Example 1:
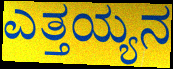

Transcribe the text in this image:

ಎತ್ತಯ್ಯನ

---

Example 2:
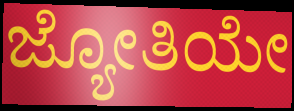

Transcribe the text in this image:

ಜ್ಯೋತಿಯೇ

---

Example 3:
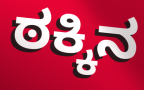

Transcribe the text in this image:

ಠಕ್ಕಿನ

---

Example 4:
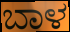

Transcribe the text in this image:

ಬಾಳ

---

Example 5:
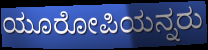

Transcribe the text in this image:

ಯೂರೋಪಿಯನ್ನರು